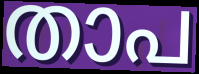
താപ